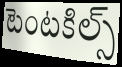
టెంటకిల్స్